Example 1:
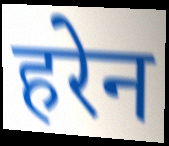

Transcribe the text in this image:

हरेन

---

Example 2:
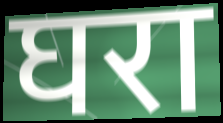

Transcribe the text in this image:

घरा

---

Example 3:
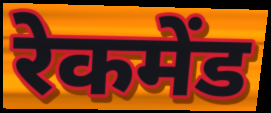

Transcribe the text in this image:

रेकमेंड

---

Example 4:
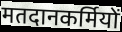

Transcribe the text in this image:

मतदानकर्मियों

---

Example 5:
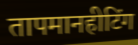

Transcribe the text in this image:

तापमानहीटिंग